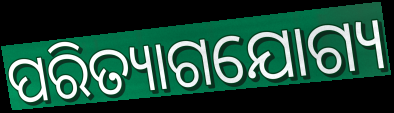
ପରିତ୍ୟାଗଯୋଗ୍ୟ